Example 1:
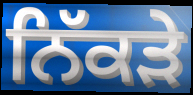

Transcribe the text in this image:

ਨਿੱਕੜੇ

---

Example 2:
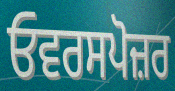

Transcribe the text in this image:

ਓਵਰਸਪੋਜ਼ਰ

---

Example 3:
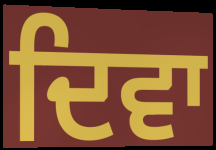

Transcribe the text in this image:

ਦਿਵਾ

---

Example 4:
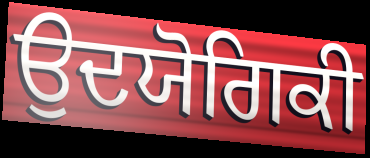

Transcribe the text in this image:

ਉਦਯੋਗਿਕੀ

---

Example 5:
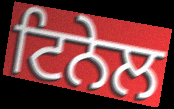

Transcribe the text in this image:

ਟਿਨੇਲ